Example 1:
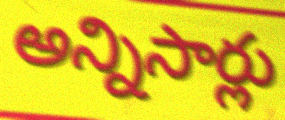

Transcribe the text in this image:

అన్నిసార్లు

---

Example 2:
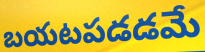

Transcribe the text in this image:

బయటపడడమే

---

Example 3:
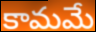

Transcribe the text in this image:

కామమే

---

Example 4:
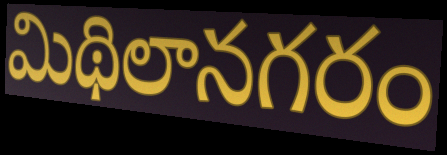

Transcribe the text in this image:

మిథిలానగరం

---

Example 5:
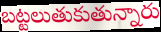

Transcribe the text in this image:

బట్టలుతుకుతున్నారు